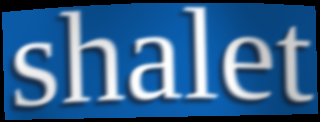
shalet